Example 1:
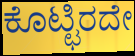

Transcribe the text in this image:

ಕೊಟ್ಟಿರದೇ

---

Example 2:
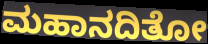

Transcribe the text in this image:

ಮಹಾನದಿತೋ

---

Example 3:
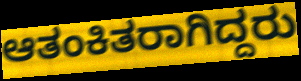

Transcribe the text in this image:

ಆತಂಕಿತರಾಗಿದ್ದರು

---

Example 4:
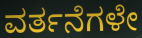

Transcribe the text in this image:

ವರ್ತನೆಗಳೇ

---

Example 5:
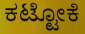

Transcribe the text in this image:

ಕಟ್ಟೋಕೆ